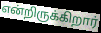
என்றிருக்கிறார்